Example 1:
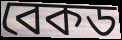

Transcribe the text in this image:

বেকড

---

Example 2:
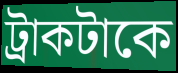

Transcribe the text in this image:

ট্রাকটাকে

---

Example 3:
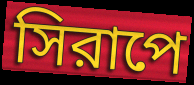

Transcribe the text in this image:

সিরাপে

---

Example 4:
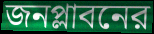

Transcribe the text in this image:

জনপ্লাবনের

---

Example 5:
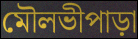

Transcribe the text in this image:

মৌলভীপাড়া